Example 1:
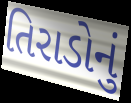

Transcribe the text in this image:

તિરાડોનું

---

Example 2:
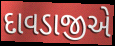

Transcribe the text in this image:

દાવડાજીએ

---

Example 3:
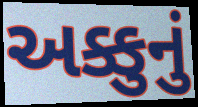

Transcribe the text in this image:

અક્કુનું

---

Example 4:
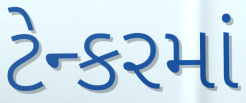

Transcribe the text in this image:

ટેન્કરમાં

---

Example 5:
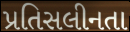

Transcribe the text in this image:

પ્રતિસલીનતા